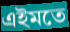
এইমতে